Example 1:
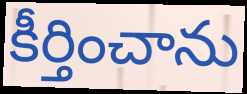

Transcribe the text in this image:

కీర్తించాను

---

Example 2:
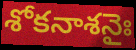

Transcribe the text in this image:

శోకనాశనైః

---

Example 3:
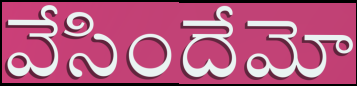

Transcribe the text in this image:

వేసిందేమో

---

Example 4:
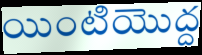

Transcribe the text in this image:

యింటియొద్ద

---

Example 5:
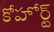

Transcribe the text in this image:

కోహోర్ట్